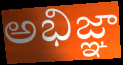
అభిజ్ఞా